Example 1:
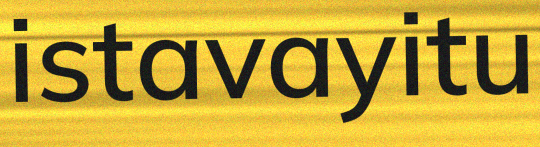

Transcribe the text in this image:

istavayitu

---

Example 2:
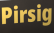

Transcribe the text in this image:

Pirsig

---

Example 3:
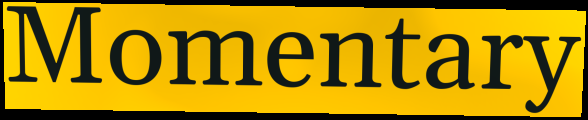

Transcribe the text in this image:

Momentary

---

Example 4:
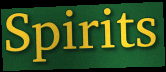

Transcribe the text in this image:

Spirits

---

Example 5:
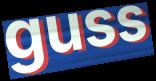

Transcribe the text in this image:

guss